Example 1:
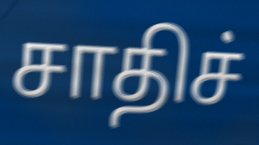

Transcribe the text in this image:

சாதிச்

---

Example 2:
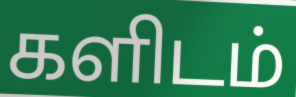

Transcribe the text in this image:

களிடம்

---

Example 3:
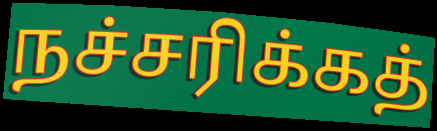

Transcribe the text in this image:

நச்சரிக்கத்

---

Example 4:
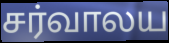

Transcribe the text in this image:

சர்வாலய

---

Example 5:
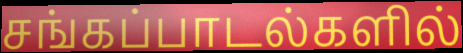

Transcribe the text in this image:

சங்கப்பாடல்களில்